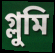
গ্লুমি